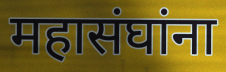
महासंघांना